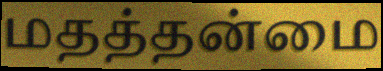
மதத்தன்மை